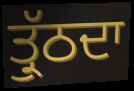
ਤ੍ਰੁੱਠਦਾ